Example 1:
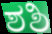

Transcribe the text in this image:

ಶಶಿ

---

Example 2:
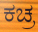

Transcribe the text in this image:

ಕಚ್ರ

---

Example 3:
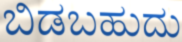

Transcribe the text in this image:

ಬಿಡಬಹುದು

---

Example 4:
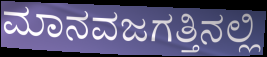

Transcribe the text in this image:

ಮಾನವಜಗತ್ತಿನಲ್ಲಿ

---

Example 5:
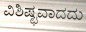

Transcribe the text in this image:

ವಿಶಿಷ್ಟವಾದದು